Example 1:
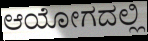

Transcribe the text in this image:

ಆಯೋಗದಲ್ಲಿ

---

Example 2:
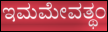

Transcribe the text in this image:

ಇಮಮೇವತ್ಥಂ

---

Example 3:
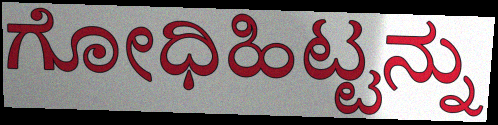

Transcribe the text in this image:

ಗೋಧಿಹಿಟ್ಟನ್ನು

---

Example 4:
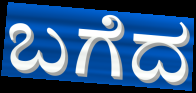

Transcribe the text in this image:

ಬಗೆದ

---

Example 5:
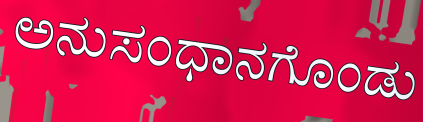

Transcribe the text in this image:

ಅನುಸಂಧಾನಗೊಂಡು